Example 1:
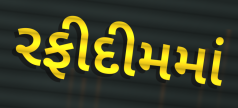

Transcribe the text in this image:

રફીદીમમાં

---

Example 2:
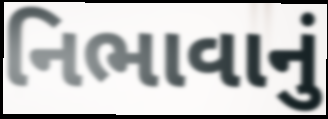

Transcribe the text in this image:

નિભાવાનું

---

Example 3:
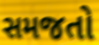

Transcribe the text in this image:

સમજતો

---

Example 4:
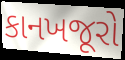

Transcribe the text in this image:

કાનખજૂરો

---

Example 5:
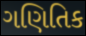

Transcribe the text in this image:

ગણિતિક